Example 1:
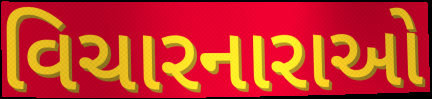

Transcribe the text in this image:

વિચારનારાઓ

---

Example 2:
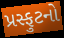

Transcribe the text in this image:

પ્રસ્ફુટનો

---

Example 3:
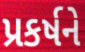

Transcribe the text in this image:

પ્રકર્ષને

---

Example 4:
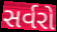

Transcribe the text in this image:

સર્વરો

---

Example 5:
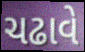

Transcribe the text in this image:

ચઢાવે